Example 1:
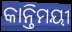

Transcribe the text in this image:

କାନ୍ତିମୟୀ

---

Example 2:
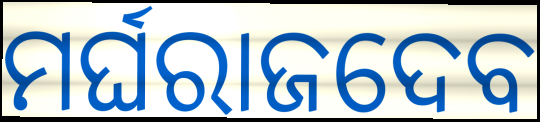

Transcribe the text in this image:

ମର୍ଘରାଜଦେବ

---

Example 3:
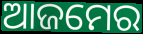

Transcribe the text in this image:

ଆଜମେର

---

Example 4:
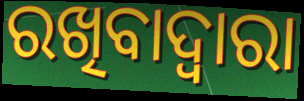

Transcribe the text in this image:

ରଖିବାଦ୍ୱାରା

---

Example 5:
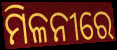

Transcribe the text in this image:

ମିଳନୀରେ